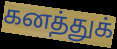
கனத்துக்